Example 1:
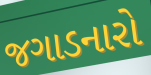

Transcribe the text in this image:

જગાડનારો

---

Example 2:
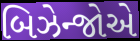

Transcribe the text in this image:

બિઝેન્જોએ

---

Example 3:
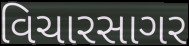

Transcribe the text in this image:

વિચારસાગર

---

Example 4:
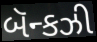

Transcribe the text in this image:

બૅન્કઝી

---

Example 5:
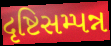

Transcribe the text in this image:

દૃષ્ટિસમ્પન્ન